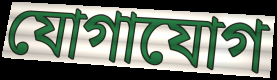
যোগাযোগ